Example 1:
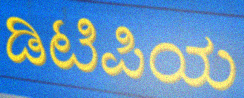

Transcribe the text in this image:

ಡಿಟಿಪಿಯ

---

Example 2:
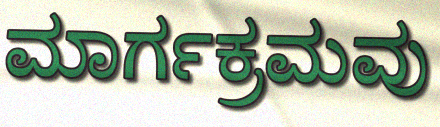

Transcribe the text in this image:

ಮಾರ್ಗಕ್ರಮವು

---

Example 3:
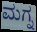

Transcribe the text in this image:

ಮಗ್ನ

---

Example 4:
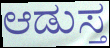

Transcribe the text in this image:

ಆಡುಸ್ತ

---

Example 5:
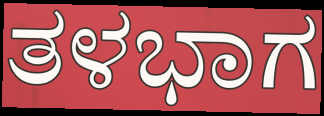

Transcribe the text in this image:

ತಳಭಾಗ